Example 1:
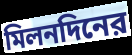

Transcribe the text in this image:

মিলনদিনের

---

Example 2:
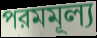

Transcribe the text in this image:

পরমমূল্য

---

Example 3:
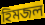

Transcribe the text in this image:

হিমজল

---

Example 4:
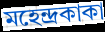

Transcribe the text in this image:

মহেন্দ্রকাকা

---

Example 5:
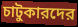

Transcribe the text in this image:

চাটুকারদের